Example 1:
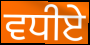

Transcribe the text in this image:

ਵਧੀਏ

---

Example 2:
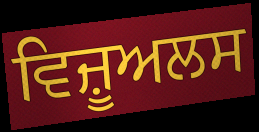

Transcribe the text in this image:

ਵਿਜ਼ੂਅਲਸ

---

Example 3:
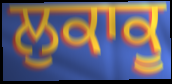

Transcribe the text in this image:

ਲੁਕਾਕੂ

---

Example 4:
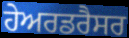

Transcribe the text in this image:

ਹੇਅਰਡਰੈਸਰ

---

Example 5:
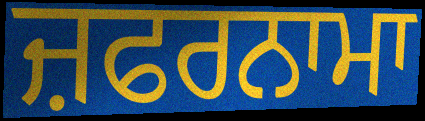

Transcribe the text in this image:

ਜ਼ਫਰਨਾਮਾ